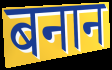
बनान